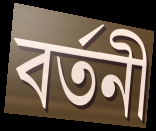
বর্তনী